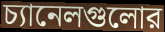
চ্যানেলগুলোর